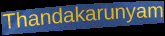
Thandakarunyam